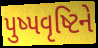
પુષ્પવૃષ્ટિને